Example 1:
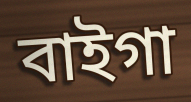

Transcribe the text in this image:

বাইগা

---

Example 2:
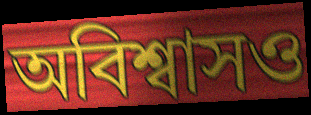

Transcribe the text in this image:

অবিশ্বাসও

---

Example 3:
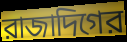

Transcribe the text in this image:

রাজাদিগের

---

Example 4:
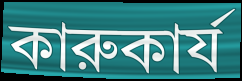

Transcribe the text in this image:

কারুকার্য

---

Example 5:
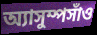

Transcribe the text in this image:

অ্যাসুম্পসাঁও